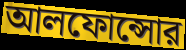
আলফোন্সোর